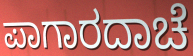
ಪಾಗಾರದಾಚೆ